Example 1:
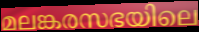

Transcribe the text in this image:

മലങ്കരസഭയിലെ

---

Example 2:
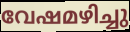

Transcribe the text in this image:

വേഷമഴിച്ചു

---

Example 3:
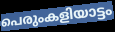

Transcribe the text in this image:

പെരുംകളിയാട്ടം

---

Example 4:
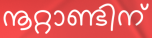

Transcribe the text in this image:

നൂറ്റാണ്ടിന്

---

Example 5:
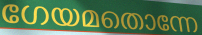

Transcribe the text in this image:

ഗേയമതൊന്നേ